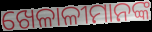
ଖେଳାଳୀମାନଙ୍କ